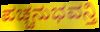
ಪಚ್ಚನುಭವನ್ತಿ